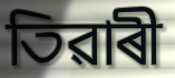
তিৱাৰী